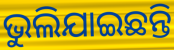
ଭୁଲିଯାଇଛନ୍ତି